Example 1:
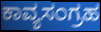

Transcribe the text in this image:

ಕಾವ್ಯಸಂಗ್ರಹ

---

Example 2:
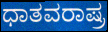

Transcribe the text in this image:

ಧಾತವರಾಷ್ರ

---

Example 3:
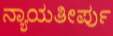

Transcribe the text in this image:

ನ್ಯಾಯತೀರ್ಪು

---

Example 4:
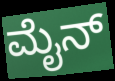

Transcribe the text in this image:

ಮೈನ್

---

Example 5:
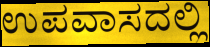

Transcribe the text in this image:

ಉಪವಾಸದಲ್ಲಿ